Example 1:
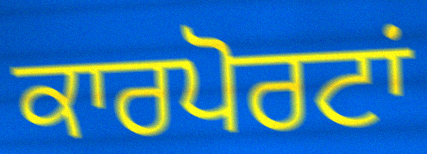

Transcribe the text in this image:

ਕਾਰਪੋਰਟਾਂ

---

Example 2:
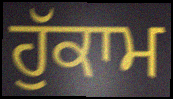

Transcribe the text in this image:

ਹੁੱਕਾਮ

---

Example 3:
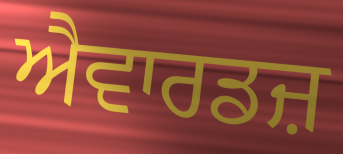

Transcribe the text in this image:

ਐਵਾਰਡਜ਼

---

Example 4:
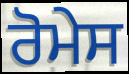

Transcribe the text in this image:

ਰੋਮੇਸ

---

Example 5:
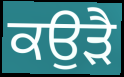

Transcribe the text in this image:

ਕਉੜੈ